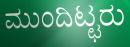
ಮುಂದಿಟ್ಟರು